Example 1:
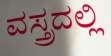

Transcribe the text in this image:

ವಸ್ತ್ರದಲ್ಲಿ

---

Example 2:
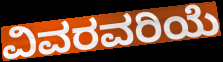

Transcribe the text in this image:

ವಿವರವರಿಯೆ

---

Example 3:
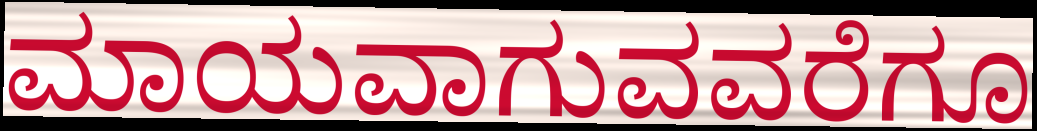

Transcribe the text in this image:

ಮಾಯವಾಗುವವರೆಗೂ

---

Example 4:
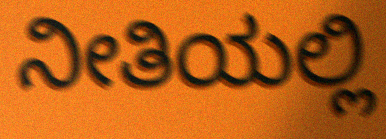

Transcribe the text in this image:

ನೀತಿಯಲ್ಲಿ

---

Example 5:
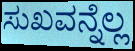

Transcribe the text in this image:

ಸುಖವನ್ನೆಲ್ಲ